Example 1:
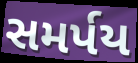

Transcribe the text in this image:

સમર્પય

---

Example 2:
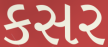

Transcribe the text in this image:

કસર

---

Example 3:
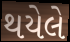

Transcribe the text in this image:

થયેલે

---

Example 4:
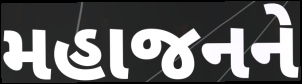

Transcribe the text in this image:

મહાજનને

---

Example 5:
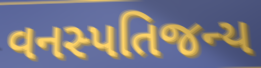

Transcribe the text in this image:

વનસ્પતિજન્ય